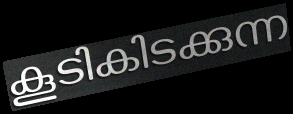
കൂടികിടക്കുന്ന